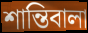
শান্তিবালা